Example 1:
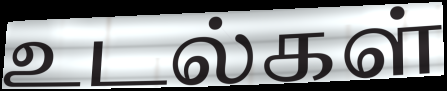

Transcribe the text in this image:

உடல்கள்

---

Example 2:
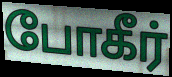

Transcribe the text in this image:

போகீர்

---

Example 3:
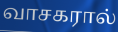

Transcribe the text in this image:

வாசகரால்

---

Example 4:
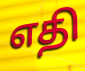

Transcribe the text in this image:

எதி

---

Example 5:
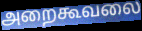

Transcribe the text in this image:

அறைகூவலை